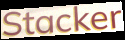
Stacker